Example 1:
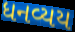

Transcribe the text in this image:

ધનવ્યય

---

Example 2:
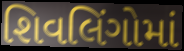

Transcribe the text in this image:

શિવલિંગોમાં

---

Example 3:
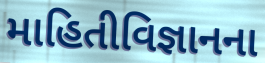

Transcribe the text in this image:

માહિતીવિજ્ઞાનના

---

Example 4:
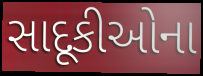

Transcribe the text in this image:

સાદૂકીઓના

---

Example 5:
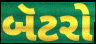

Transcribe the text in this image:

બૅટરો